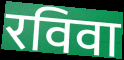
रविवा